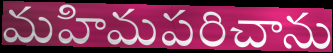
మహిమపరిచాను